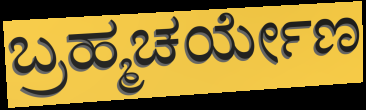
ಬ್ರಹ್ಮಚರ್ಯೇಣ